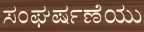
ಸಂಘರ್ಷಣೆಯು